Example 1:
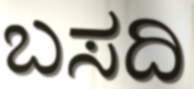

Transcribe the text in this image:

ಬಸದಿ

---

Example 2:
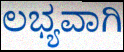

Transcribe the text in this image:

ಲಭ್ಯವಾಗಿ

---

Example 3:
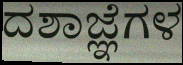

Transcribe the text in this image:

ದಶಾಜ್ಞೆಗಳ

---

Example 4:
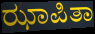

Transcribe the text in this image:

ಝಾಪಿತಾ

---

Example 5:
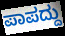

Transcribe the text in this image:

ಪಾಪದ್ದು